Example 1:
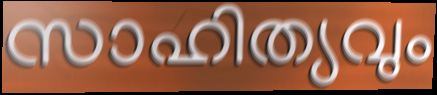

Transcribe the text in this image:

സാഹിത്യവും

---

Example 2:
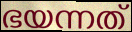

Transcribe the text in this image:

ഭയന്നത്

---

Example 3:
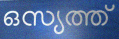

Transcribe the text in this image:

ഒസ്യത്ത്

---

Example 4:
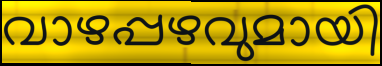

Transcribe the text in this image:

വാഴപ്പഴവുമായി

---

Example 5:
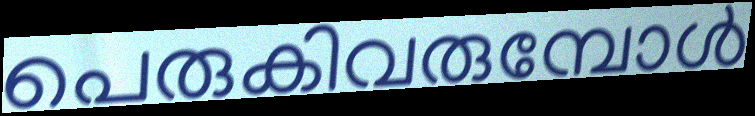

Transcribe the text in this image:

പെരുകിവരുമ്പോൾ